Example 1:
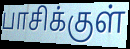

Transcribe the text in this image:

பாசிக்குள்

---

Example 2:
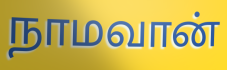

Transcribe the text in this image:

நாமவான்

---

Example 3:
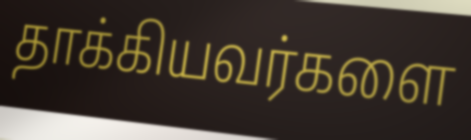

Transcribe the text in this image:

தாக்கியவர்களை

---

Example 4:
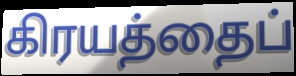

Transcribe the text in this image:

கிரயத்தைப்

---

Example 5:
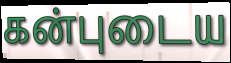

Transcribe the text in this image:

கன்புடைய